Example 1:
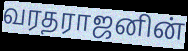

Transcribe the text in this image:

வரதராஜனின்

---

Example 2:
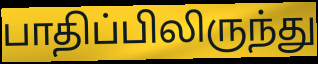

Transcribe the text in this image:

பாதிப்பிலிருந்து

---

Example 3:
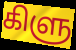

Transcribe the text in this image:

கிளு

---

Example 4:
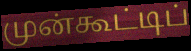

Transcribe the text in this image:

முன்கூட்டிப்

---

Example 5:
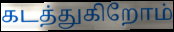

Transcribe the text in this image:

கடத்துகிறோம்